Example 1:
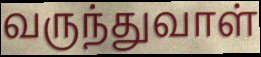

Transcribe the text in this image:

வருந்துவாள்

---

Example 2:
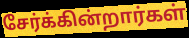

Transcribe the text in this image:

சேர்க்கின்றார்கள்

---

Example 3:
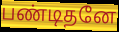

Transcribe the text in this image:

பண்டிதனே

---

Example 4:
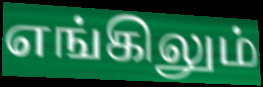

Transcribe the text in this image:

எங்கிலும்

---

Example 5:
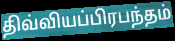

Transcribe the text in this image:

திவ்வியப்பிரபந்தம்